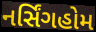
નર્સિંગહોમ